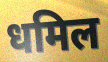
धमिल